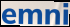
emni